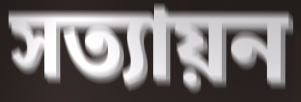
সত্যায়ন